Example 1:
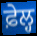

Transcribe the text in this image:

ਫ਼ੇਲ੍ਹ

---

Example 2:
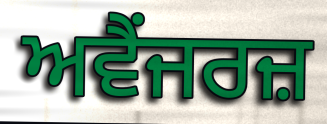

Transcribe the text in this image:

ਅਵੈਂਜਰਜ਼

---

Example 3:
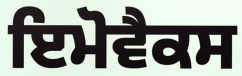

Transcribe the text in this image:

ਇਮੋਵੈਕਸ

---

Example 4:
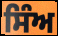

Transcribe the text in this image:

ਸਿੰਅ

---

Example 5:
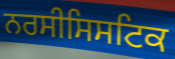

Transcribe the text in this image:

ਨਰਸੀਸਿਸਟਿਕ